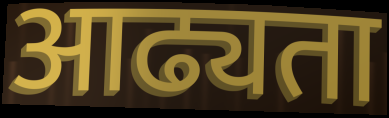
आढ्यता